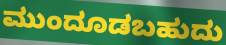
ಮುಂದೂಡಬಹುದು